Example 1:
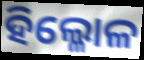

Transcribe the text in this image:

ହିଲ୍ଳୋଳ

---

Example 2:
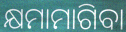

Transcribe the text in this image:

କ୍ଷମାମାଗିବା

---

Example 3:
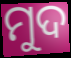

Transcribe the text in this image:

ମୁଦ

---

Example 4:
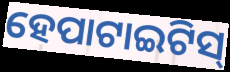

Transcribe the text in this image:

ହେପାଟାଇଟିସ୍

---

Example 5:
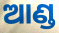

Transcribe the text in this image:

ଆଣ୍ଡ